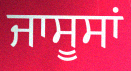
ਜਾਸੂਸਾਂ